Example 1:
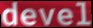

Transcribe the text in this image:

devel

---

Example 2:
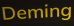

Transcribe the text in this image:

Deming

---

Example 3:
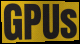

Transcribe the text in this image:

GPUs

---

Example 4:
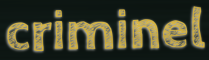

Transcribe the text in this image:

criminel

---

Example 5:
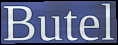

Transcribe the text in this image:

Butel